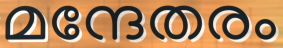
മന്ദേതരം